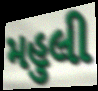
મહુલી